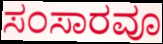
ಸಂಸಾರವೂ